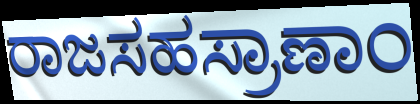
ರಾಜಸಹಸ್ರಾಣಾಂ